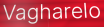
Vagharelo